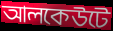
আলকেউটে